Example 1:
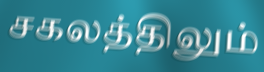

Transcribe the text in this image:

சகலத்திலும்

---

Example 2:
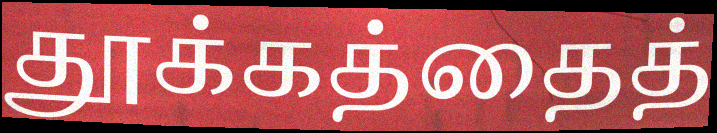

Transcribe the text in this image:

தூக்கத்தைத்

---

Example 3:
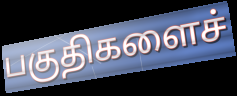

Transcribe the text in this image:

பகுதிகளைச்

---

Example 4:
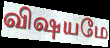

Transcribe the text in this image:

விஷயமே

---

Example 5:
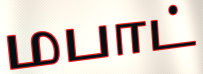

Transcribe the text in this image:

மபாட்